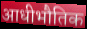
आधीभौतिक